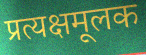
प्रत्यक्षमूलक